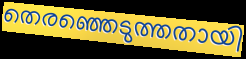
തെരഞ്ഞെടുത്തതായി